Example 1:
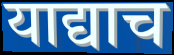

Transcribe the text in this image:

याद्याच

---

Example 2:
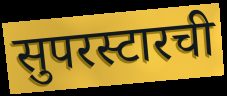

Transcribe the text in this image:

सुपरस्टारची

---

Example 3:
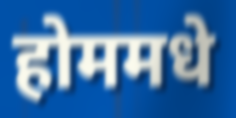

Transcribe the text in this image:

होममधे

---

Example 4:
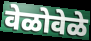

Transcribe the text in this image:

वेळोवेळे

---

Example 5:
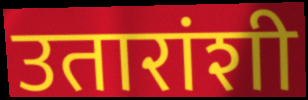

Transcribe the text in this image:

उतारांशी